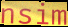
nsim